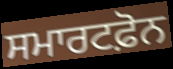
ਸਮਾਰਟਫ਼ੋਨ